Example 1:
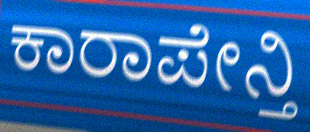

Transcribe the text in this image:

ಕಾರಾಪೇನ್ತಿ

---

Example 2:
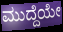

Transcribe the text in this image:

ಮುದ್ದೆಯೇ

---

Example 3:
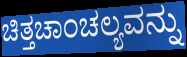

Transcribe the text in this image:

ಚಿತ್ತಚಾಂಚಲ್ಯವನ್ನು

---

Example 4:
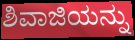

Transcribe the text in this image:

ಶಿವಾಜಿಯನ್ನು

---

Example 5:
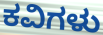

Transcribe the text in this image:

ಕವಿಗಳು